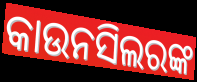
କାଉନସିଲରଙ୍କ